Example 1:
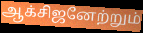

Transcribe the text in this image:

ஆக்சிஜனேற்றும்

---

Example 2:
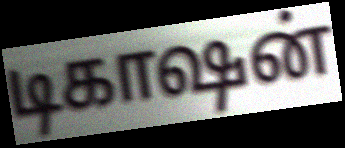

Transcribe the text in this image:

டிகாஷன்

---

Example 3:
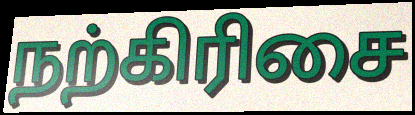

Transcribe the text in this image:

நற்கிரிசை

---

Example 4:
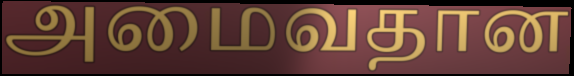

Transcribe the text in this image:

அமைவதான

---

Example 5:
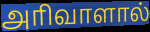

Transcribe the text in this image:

அரிவாளால்